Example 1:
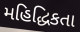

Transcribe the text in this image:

મહિદ્ધિકતા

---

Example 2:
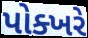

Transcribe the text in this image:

પોક્ખરે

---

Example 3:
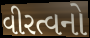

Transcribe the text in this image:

વીરત્વનો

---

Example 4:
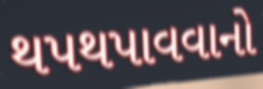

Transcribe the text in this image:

થપથપાવવાનો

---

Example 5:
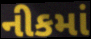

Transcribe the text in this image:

નીકમાં